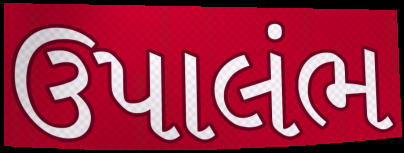
ઉપાલંભ